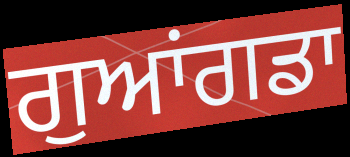
ਗੁਆਂਗਡਾ